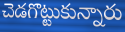
చెడగొట్టుకున్నారు